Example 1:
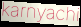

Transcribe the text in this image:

karnyachi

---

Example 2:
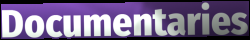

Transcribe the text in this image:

Documentaries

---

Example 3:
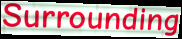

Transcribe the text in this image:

Surrounding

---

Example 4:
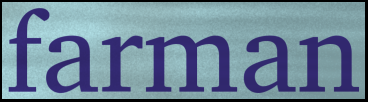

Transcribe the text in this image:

farman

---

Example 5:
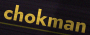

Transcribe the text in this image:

chokman